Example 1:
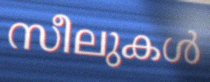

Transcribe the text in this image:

സീലുകൾ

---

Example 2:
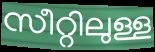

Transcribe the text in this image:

സീറ്റിലുള്ള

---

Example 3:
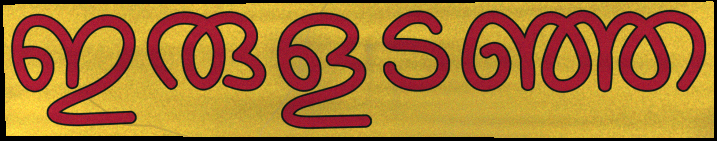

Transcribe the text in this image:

ഇരുളടഞ്ഞ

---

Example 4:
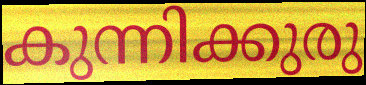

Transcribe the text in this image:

കുന്നിക്കുരു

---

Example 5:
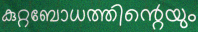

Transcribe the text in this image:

കുറ്റബോധത്തിന്റെയും